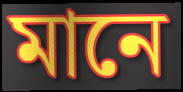
মানে